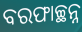
ବରଫାଚ୍ଛନ୍ନ